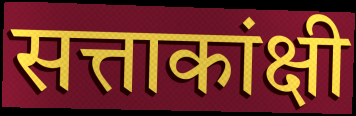
सत्ताकांक्षी